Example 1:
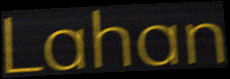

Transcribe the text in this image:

Lahan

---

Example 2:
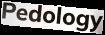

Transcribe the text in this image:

Pedology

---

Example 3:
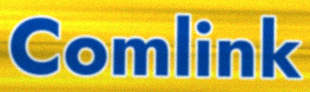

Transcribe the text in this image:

Comlink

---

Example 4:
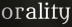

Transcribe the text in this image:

orality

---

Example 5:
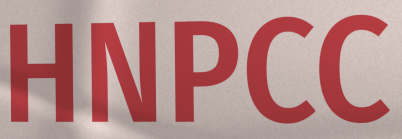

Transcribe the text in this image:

HNPCC